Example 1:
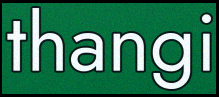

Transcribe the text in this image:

thangi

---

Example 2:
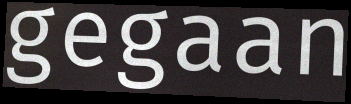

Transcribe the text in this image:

gegaan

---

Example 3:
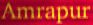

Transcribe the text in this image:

Amrapur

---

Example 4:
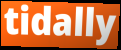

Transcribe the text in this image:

tidally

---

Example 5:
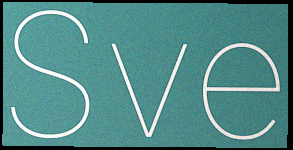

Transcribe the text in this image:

Sve